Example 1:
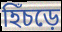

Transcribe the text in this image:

হিঁচড়ে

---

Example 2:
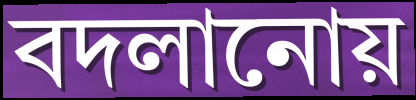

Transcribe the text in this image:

বদলানোয়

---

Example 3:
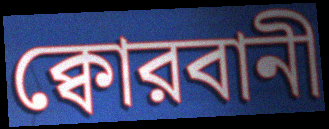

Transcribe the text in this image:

ক্বোরবানী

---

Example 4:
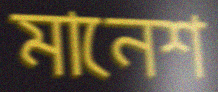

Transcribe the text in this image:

মানেশ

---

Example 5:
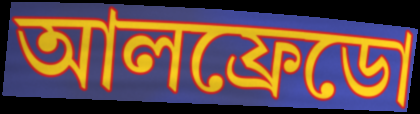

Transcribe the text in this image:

আলফ্রেডো